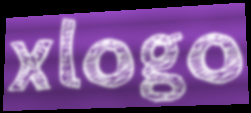
xlogo